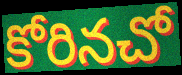
కోరినచో